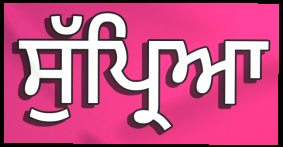
ਸੁੱਪ੍ਰਿਆ